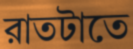
রাতটাতে